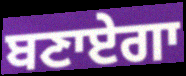
ਬਣਾਏਗਾ